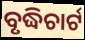
ବୃଦ୍ଧିଚାର୍ଟ